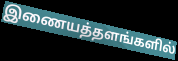
இணையத்தளங்களில்